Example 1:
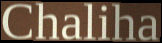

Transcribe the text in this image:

Chaliha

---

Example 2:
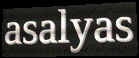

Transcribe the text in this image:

asalyas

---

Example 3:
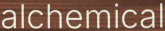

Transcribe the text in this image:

alchemical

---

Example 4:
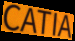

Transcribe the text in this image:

CATIA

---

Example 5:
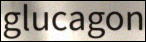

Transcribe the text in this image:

glucagon